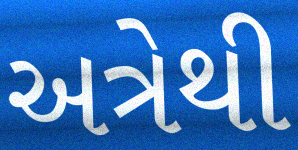
અત્રેથી